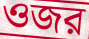
ওজর